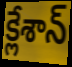
క్లేశాన్